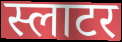
स्लाटर